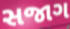
સજાગ